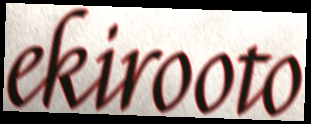
ekirooto